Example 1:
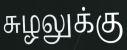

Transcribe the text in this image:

சுழலுக்கு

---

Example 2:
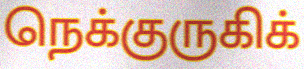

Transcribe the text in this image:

நெக்குருகிக்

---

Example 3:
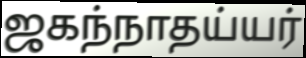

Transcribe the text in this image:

ஜகந்நாதய்யர்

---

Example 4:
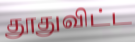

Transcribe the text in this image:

தூதுவிட்ட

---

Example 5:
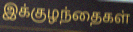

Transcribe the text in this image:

இக்குழந்தைகள்